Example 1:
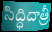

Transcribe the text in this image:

సిద్ధిదాత్రీ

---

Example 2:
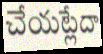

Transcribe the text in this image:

చేయట్లేదా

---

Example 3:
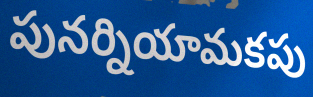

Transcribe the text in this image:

పునర్నియామకపు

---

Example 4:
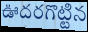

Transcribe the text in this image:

ఊదరగొట్టిన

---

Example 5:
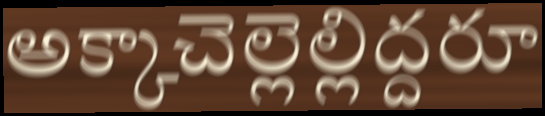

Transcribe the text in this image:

అక్కాచెల్లెల్లిద్దరూ